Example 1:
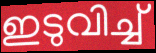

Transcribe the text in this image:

ഇടുവിച്ച്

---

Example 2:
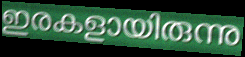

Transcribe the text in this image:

ഇരകളായിരുന്നു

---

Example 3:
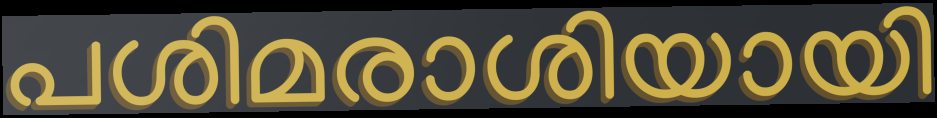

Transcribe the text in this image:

പശിമരാശിയായി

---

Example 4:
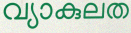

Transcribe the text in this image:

വ്യാകുലത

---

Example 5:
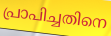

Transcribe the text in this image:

പ്രാപിച്ചതിനെ